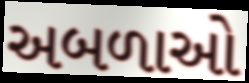
અબળાઓ